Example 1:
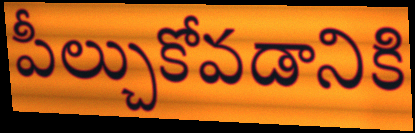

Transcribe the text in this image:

పీల్చుకోవడానికి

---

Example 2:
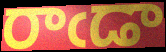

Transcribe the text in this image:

రాఁడా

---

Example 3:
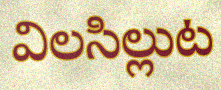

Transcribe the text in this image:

విలసిల్లుట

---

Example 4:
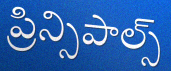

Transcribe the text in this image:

ప్రిన్సిపాల్స్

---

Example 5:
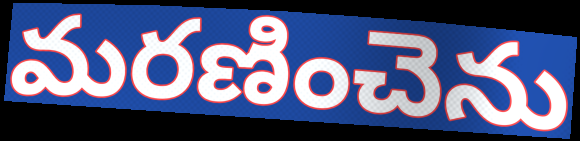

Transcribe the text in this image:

మరణించెను